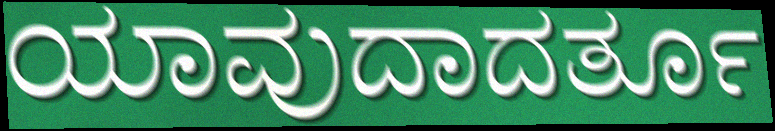
ಯಾವುದಾದರ್ತೂ